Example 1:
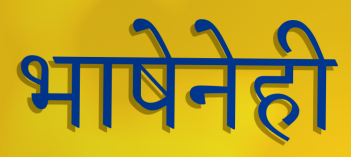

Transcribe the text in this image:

भाषेनेही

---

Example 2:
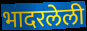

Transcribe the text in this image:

भादरलेली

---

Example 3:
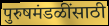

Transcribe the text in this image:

पुरुषमंडळींसाठी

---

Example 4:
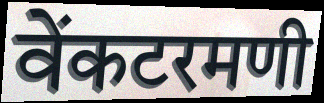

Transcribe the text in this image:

वेंकटरमणी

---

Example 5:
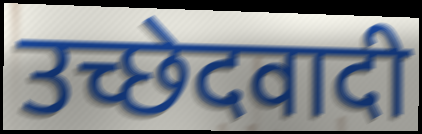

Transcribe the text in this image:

उच्छेदवादी